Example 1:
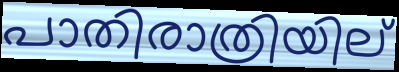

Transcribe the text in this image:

പാതിരാത്രിയില്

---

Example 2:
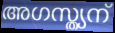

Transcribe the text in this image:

അഗസ്ത്യന്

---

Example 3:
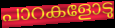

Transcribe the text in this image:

പാറകളോടു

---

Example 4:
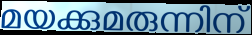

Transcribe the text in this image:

മയക്കുമരുന്നിന്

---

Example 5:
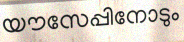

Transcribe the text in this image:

യൗസേപ്പിനോടും